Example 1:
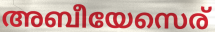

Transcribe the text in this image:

അബീയേസെര്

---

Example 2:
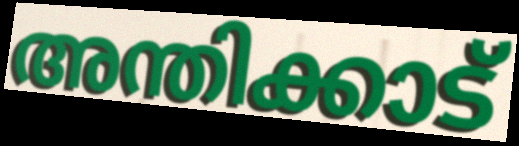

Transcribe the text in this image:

അന്തിക്കാട്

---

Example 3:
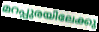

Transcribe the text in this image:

മറപ്പുരയിലേക്കു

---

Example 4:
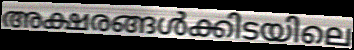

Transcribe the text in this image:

അക്ഷരങ്ങൾക്കിടയിലെ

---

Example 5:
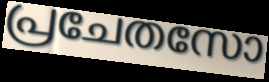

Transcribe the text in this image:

പ്രചേതസോ